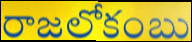
రాజలోకంబు